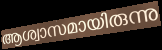
ആശ്വാസമായിരുന്നു